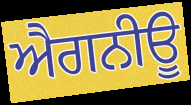
ਐਗਨੀਊ